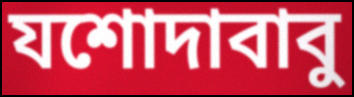
যশোদাবাবু